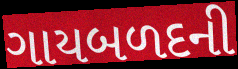
ગાયબળદની